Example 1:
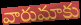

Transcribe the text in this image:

వారుమాకు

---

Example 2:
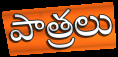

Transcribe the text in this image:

పాత్రలు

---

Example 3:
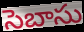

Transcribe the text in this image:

సెబాసు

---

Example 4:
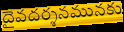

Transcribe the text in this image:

దైవదర్శనమునకు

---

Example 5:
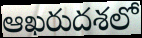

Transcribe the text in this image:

ఆఖరుదశలో